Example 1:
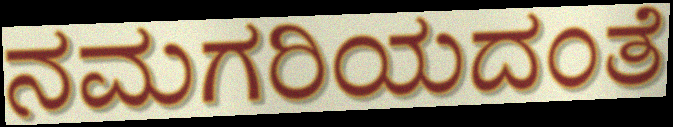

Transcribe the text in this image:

ನಮಗರಿಯದಂತೆ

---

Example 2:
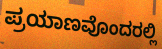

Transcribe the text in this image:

ಪ್ರಯಾಣವೊಂದರಲ್ಲಿ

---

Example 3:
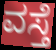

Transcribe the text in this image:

ವಸ್ತೆ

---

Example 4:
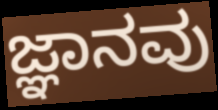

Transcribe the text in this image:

ಜ್ಞಾನವು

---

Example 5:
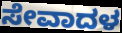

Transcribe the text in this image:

ಸೇವಾದಳ